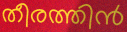
തീരത്തിൻ